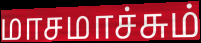
மாசமாச்சும்